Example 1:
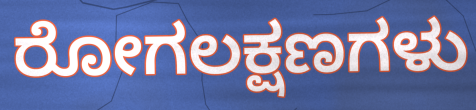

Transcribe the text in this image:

ರೋಗಲಕ್ಷಣಗಳು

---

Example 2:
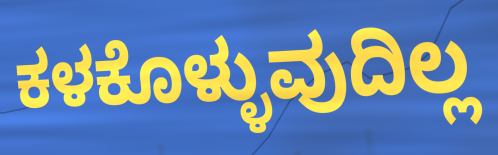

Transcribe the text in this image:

ಕಳಕೊಳ್ಳುವುದಿಲ್ಲ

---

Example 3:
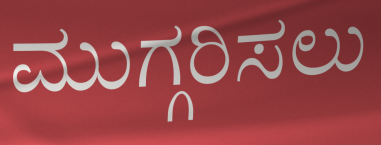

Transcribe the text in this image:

ಮುಗ್ಗರಿಸಲು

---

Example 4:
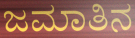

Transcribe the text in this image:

ಜಮಾತಿನ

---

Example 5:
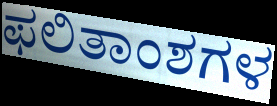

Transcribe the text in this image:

ಫಲಿತಾಂಶಗಳ